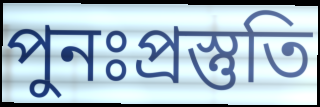
পুনঃপ্রস্তুতি